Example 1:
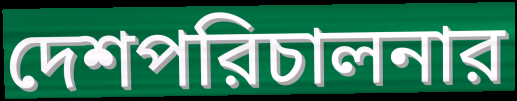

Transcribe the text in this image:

দেশপরিচালনার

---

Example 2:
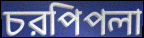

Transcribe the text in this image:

চরপিপলা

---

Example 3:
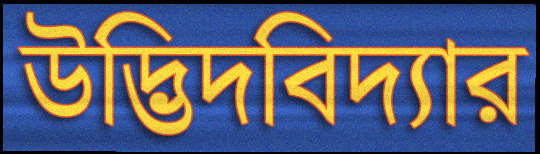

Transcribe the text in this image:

উদ্ভিদবিদ্যার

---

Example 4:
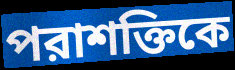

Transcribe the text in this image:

পরাশক্তিকে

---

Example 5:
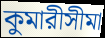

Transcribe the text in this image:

কুমারীসীমা